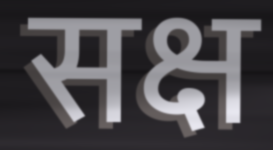
सक्ष